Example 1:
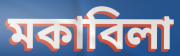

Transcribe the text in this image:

মকাবিলা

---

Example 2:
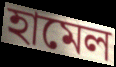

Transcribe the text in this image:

হামেল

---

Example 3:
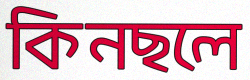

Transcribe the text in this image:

কিনছলে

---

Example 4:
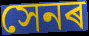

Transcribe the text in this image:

সেনৰ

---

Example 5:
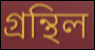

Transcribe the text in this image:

গ্ৰন্থিল